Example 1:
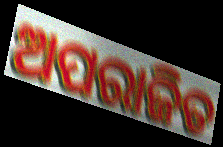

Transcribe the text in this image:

ଅପରାଜିତ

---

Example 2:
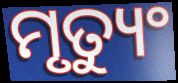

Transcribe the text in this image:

ମୃତ୍ୟୁଂ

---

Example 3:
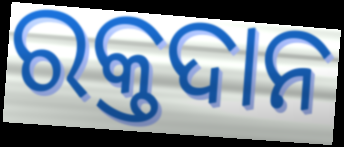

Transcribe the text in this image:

ରକ୍ତଦାନ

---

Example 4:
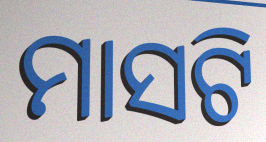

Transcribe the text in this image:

ମାସଟି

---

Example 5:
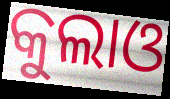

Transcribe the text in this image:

କୁଲାଓ